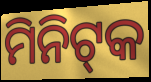
ମିନିଟ୍‌କ